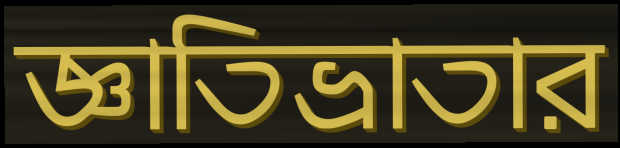
জ্ঞাতিভ্রাতার